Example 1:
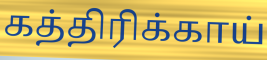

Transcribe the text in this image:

கத்திரிக்காய்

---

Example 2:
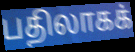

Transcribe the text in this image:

பதிலாகக்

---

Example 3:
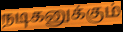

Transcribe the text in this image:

நடிகனுக்கும்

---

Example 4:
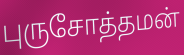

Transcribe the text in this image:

புருசோத்தமன்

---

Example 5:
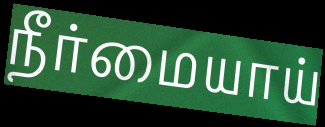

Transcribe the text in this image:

நீர்மையாய்